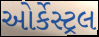
ઓર્કેસ્ટ્રલ